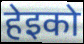
हेइको